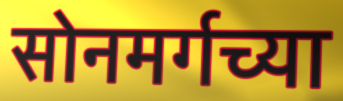
सोनमर्गच्या